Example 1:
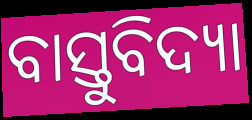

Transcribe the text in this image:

ବାସ୍ତୁବିଦ୍ୟା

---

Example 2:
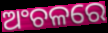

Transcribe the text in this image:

ଅଂଚଳରେ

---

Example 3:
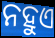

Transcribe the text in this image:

ନହୁଏ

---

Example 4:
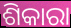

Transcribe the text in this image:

ଶିକାରା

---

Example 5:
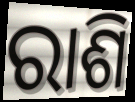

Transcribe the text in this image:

ରାଶି